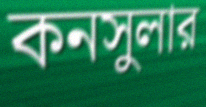
কনসুলার